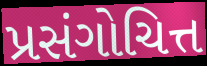
પ્રસંગોચિત્ત